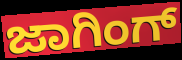
ಜಾಗಿಂಗ್